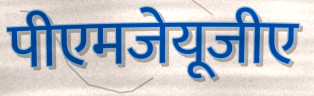
पीएमजेयूजीए